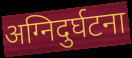
अग्निदुर्घटना